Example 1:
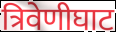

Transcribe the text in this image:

त्रिवेणीघाट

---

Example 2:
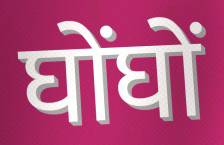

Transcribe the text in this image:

घोंघों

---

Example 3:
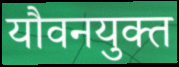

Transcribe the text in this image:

यौवनयुक्त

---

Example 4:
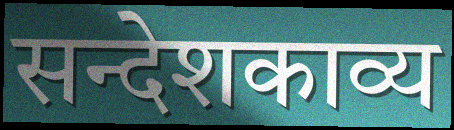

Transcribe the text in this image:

सन्देशकाव्य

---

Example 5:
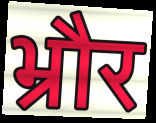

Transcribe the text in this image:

भ्रौर